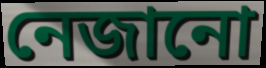
নেজানো